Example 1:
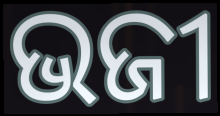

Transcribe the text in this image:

ଭଜୀ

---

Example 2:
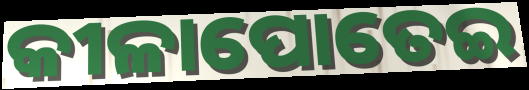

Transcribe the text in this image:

କୀଳାପୋତେଇ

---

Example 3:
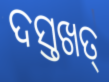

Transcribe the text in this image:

ଦସ୍ତଖତ୍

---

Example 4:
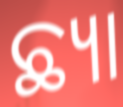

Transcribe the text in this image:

ଛ୍ୟା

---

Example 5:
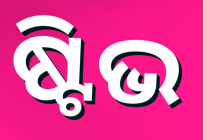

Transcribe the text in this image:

ଷ୍ଟିଭ